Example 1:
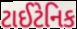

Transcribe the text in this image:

ટાઈટેનિક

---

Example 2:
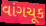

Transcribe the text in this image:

વાંગચૂક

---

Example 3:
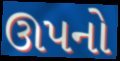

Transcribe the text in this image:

ઊપનો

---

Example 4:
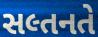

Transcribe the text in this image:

સલ્તનતે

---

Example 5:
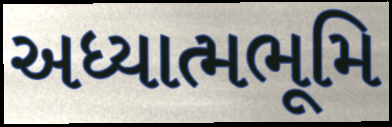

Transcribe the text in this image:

અધ્યાત્મભૂમિ